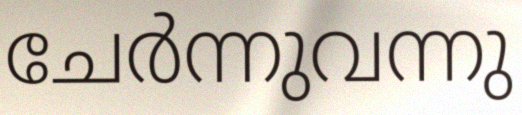
ചേർന്നുവന്നു